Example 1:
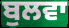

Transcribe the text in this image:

ਬੁਲਵਾ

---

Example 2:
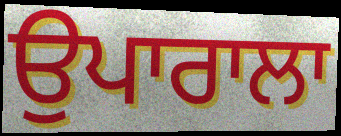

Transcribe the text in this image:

ਉਪਾਰਾਲਾ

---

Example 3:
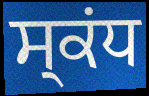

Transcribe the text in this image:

ਸ੍ਕਂਧ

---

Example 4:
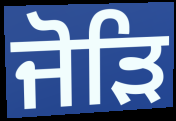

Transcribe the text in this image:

ਜੋੜਿ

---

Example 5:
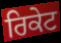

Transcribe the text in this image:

ਰਿਕੇਟ